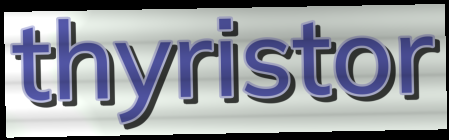
thyristor